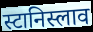
स्टानिस्लाव